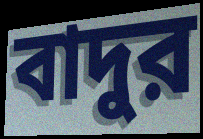
বাদুর